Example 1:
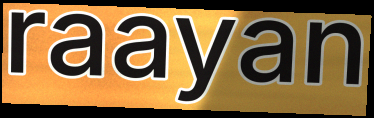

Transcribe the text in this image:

raayan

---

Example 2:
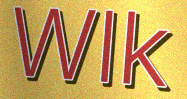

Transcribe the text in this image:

Wlk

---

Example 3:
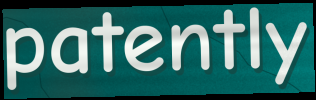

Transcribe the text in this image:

patently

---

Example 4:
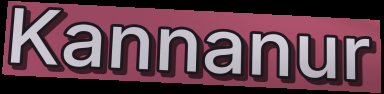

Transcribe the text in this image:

Kannanur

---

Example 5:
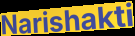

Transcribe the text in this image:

Narishakti